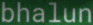
bhalun